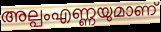
അല്പംഎണ്ണയുമാണ്